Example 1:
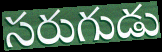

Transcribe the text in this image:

సరుగుడు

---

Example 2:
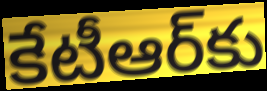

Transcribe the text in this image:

కేటీఆర్‌కు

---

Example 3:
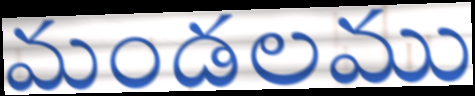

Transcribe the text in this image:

మండలము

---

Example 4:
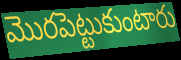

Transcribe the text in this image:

మొరపెట్టుకుంటారు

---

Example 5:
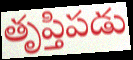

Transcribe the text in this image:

తృప్తిపడు